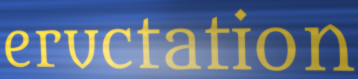
eructation